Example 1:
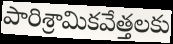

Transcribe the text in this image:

పారిశ్రామికవేత్తలకు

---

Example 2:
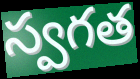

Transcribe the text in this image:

స్వగత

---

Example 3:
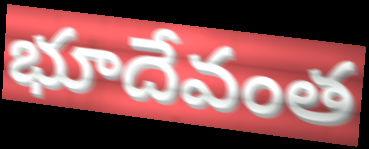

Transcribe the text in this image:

భూదేవంత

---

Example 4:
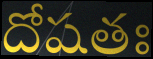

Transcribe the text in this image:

దోషతః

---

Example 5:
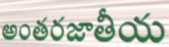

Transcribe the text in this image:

అంతరజాతీయ